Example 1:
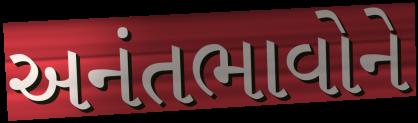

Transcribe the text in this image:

અનંતભાવોને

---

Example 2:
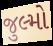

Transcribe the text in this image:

જુલ્મો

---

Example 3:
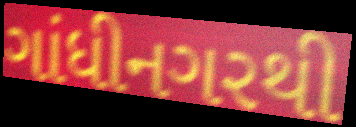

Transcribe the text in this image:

ગાંધીનગરથી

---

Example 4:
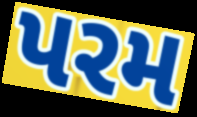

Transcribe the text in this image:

પરમ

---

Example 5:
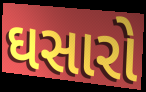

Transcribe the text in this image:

ઘસારો